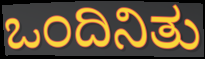
ಒಂದಿನಿತು